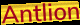
Antlion